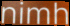
nimh